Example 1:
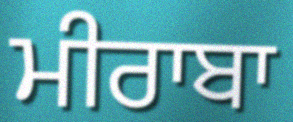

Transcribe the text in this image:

ਮੀਰਾਬਾ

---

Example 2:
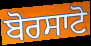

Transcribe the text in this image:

ਬੋਰਸਾਟੋ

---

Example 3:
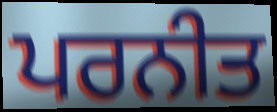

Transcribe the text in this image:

ਪਰਨੀਤ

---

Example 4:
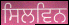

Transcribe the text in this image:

ਸਿਲਵਿਨ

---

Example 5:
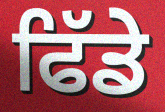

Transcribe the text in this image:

ਫਿੱਡੇ